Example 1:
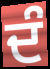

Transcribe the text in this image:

ਦੰ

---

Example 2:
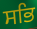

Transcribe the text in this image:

ਸਭਿ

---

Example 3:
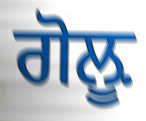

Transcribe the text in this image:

ਗੋਲ਼ੂ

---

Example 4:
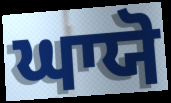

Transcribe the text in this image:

ਘਾਯੋ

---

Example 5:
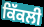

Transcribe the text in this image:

ਕਿੱਕਲੀ